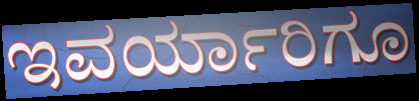
ಇವರ್ಯಾರಿಗೂ